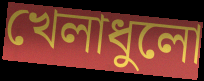
খেলাধুলো